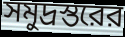
সমুদ্রস্তরের